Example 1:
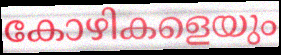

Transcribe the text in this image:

കോഴികളെയും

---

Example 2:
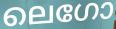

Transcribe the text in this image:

ലെഗോ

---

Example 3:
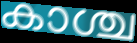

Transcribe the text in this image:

കാശ്ച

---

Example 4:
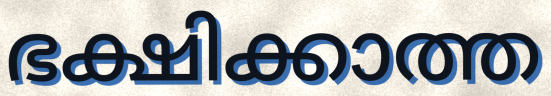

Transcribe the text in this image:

ഭക്ഷിക്കാത്ത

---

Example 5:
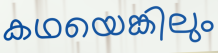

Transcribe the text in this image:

കഥയെങ്കിലും